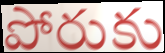
పోరుకు